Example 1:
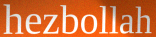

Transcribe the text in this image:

hezbollah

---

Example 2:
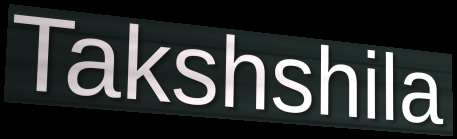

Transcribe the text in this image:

Takshshila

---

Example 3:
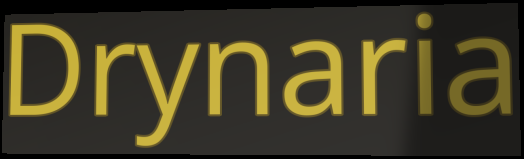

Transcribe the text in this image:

Drynaria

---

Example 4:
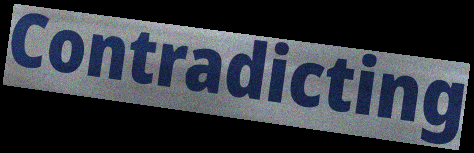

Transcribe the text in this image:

Contradicting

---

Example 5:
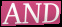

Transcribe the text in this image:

AND